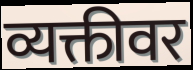
व्यक्तीवर